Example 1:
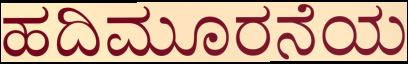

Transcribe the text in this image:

ಹದಿಮೂರನೆಯ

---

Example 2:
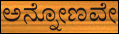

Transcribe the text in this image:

ಅನ್ನೋಣವೇ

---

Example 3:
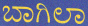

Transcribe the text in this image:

ಬಾಗಿಲಾ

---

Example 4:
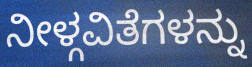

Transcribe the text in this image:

ನೀಳ್ಗವಿತೆಗಳನ್ನು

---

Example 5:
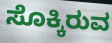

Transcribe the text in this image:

ಸೊಕ್ಕಿರುವ